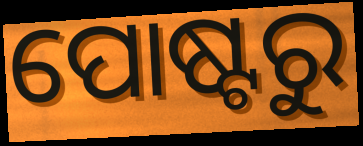
ପୋଷ୍ଟରୁ